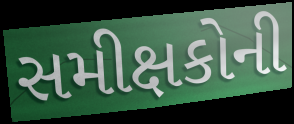
સમીક્ષકોની